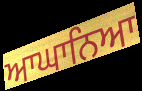
ਆਘਾਨਿਆ